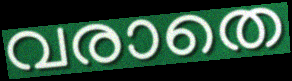
വരാതെ